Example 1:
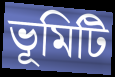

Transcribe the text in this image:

ভূমিটি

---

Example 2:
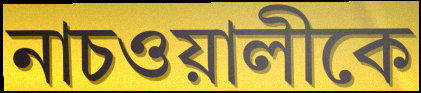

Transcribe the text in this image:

নাচওয়ালীকে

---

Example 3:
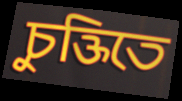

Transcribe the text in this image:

চুক্তিতে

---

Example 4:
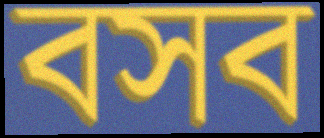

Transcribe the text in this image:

বসব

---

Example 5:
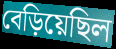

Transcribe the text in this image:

বেড়িয়েছিল